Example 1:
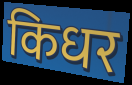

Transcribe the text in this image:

किधर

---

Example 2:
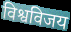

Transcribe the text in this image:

विश्वविजय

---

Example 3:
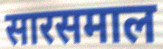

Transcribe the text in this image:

सारसमाल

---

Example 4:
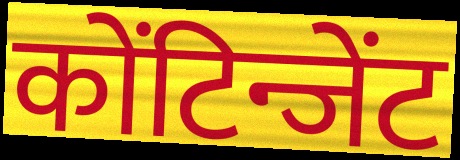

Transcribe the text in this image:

कोंटिन्जेंट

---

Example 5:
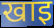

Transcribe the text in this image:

खाइ